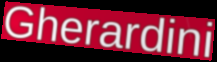
Gherardini